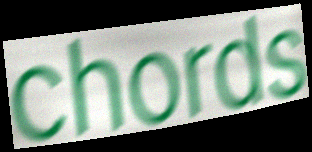
chords